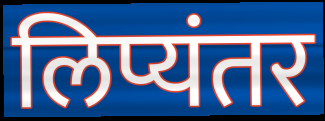
लिप्यंतर